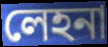
লেহনা